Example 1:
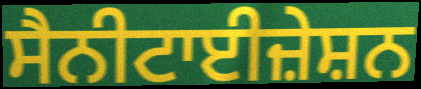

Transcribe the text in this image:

ਸੈਨੀਟਾਈਜ਼ੇਸ਼ਨ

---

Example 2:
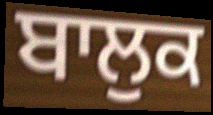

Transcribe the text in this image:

ਬਾਲੁਕ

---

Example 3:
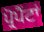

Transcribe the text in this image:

ਪ੍ਰੋਪੈਂਟਾਂ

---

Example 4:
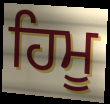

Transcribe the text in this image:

ਹਿਮੂ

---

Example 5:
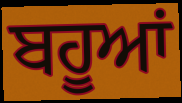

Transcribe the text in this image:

ਬਹੂਆਂ